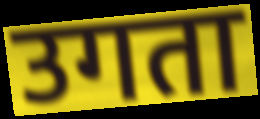
उगता